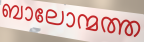
ബാലോന്മത്ത